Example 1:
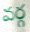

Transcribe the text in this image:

వర్గ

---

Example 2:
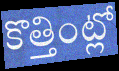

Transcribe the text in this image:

కొత్తింట్లో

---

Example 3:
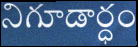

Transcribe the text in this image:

నిగూడార్ధం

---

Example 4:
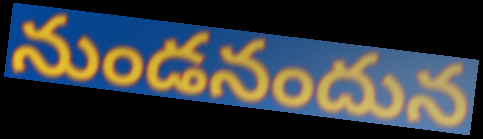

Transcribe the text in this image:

నుండనందున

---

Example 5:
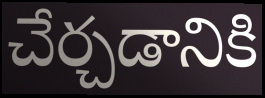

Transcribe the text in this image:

చేర్చడానికి